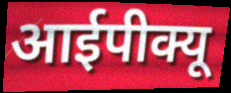
आईपीक्यू